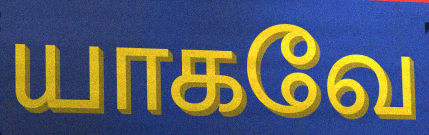
யாகவே